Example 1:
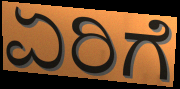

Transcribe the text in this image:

ಏರಿಗೆ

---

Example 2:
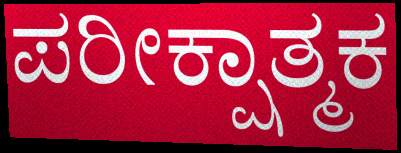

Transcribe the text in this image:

ಪರೀಕ್ಷಾತ್ಮಕ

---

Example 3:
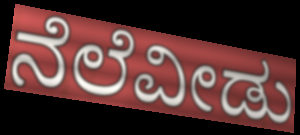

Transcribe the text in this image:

ನೆಲೆವೀಡು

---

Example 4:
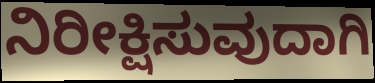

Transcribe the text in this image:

ನಿರೀಕ್ಷಿಸುವುದಾಗಿ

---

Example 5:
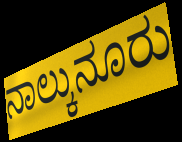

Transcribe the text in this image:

ನಾಲ್ಕುನೂರು